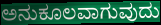
ಅನುಕೂಲವಾಗುವುದು